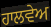
ਹਾਲਵੇਅ